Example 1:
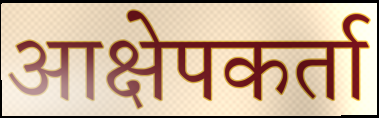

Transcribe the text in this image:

आक्षेपकर्ता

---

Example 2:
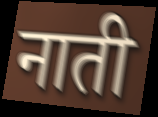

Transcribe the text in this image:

नाती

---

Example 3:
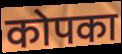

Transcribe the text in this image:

कोपका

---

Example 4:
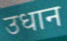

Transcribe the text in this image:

उधान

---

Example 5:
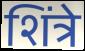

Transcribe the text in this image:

शिंत्रे